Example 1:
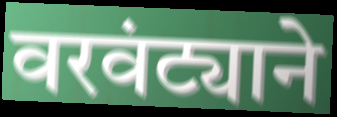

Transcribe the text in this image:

वरवंट्याने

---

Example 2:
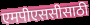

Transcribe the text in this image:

एमपीएससीसाठी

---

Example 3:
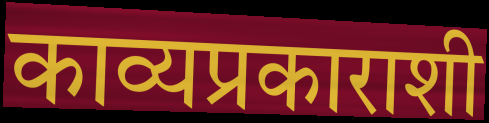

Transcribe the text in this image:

काव्यप्रकाराशी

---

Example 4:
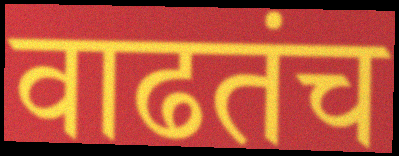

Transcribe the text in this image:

वाढतंच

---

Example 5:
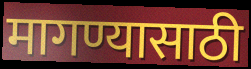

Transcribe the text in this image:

मागण्यासाठी